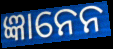
ଜ୍ଞାନେନ